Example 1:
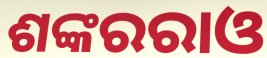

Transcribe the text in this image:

ଶଙ୍କରରାଓ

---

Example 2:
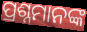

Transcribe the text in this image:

ପ୍ରଶ୍ନମାନଙ୍କ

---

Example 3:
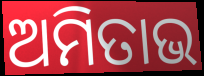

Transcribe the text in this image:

ଅମିତାଭ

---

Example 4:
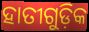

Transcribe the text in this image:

ହାତୀଗୁଡ଼ିକ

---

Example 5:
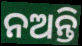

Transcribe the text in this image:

ନଅନ୍ତି